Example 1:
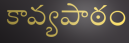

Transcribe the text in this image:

కావ్యపాఠం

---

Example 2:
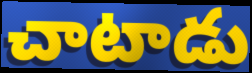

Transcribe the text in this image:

చాటాడు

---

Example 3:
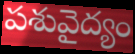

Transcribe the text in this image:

పశువైద్యం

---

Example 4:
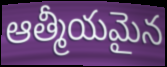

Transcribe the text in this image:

ఆత్మీయమైన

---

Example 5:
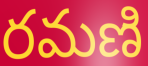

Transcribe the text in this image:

రమణి